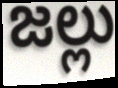
జల్లు